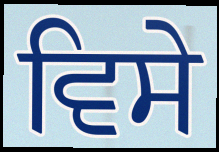
ਵਿਸੇ